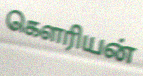
கௌரியன்